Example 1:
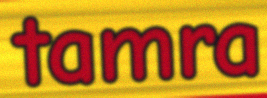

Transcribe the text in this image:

tamra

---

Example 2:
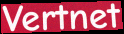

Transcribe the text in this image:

Vertnet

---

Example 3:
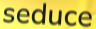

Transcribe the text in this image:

seduce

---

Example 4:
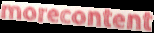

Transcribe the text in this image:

morecontent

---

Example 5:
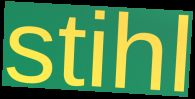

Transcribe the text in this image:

stihl